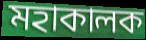
মহাকালক